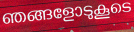
ഞങ്ങളോടുകൂടെ